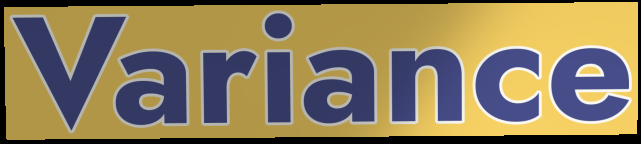
Variance